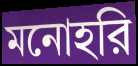
মনোহরি